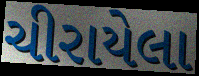
ચીરાયેલા